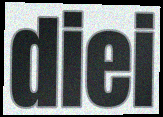
diei